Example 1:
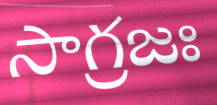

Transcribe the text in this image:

సాగ్రజః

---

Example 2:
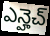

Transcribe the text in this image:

ఎన్హెచ్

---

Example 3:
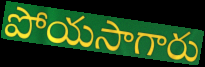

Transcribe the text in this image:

పోయసాగారు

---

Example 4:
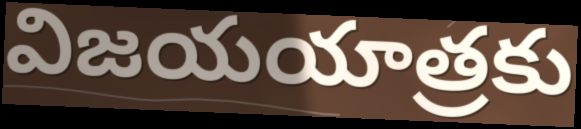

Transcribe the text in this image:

విజయయాత్రకు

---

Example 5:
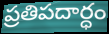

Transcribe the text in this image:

ప్రతిపదార్ధం